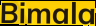
Bimala